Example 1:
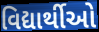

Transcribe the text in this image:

વિદ્યાર્થીઓ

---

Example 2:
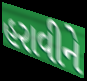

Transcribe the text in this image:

હરાવીને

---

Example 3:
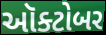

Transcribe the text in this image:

ઑક્ટોબર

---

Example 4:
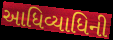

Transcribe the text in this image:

આધિવ્યાધિની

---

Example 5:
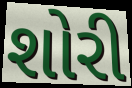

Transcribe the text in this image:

શોરી